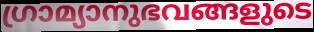
ഗ്രാമ്യാനുഭവങ്ങളുടെ